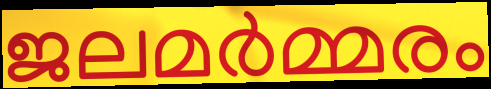
ജലമർമ്മരം